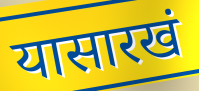
यासारखं